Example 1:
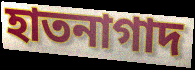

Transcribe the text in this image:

হাতনাগাদ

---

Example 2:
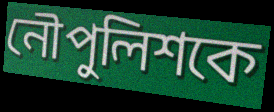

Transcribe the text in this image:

নৌপুলিশকে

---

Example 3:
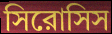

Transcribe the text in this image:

সিরোসিস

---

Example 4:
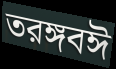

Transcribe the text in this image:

তরঙ্গবঈ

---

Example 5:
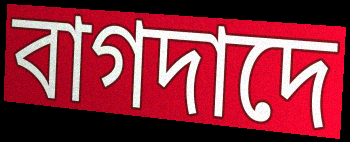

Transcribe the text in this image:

বাগদাদে